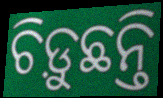
ଚିଡ଼ୁଛନ୍ତି